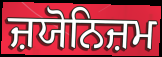
ਜ਼ਯੋਨਿਜ਼ਮ